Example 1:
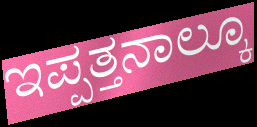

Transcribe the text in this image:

ಇಪ್ಪತ್ತನಾಲ್ಕೂ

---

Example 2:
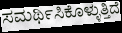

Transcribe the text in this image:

ಸಮರ್ಥಿಸಿಕೊಳ್ಳುತ್ತಿದೆ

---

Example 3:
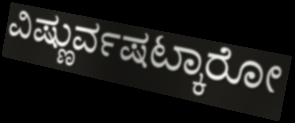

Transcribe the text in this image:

ವಿಷ್ಣುರ್ವಷಟ್ಕಾರೋ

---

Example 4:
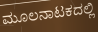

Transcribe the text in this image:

ಮೂಲನಾಟಕದಲ್ಲಿ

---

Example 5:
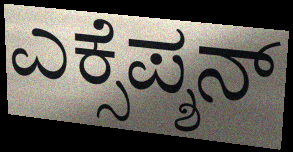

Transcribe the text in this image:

ಎಕ್ಸೆಪ್ಶನ್